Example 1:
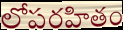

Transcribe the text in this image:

లోపరహితం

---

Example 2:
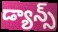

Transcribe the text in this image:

డ్యాన్స్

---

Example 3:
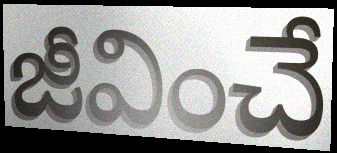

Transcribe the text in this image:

జీవించే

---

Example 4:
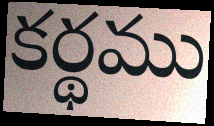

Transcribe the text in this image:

కర్థము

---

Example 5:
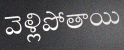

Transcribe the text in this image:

వెళ్లిపోతాయి